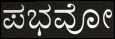
ಪಭವೋ